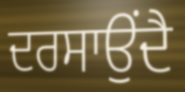
ਦਰਸਾਉਂਦੈ